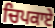
ਚਿਪਕਾਏ